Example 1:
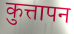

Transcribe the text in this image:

कुत्तापन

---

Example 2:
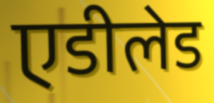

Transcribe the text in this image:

एडीलेड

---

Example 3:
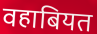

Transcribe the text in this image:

वहाबियत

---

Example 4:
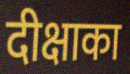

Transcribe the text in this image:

दीक्षाका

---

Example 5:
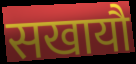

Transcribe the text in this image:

सखायौ